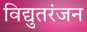
विद्युतरंजन